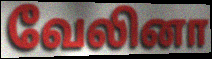
வேலினா